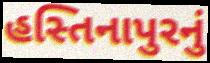
હસ્તિનાપુરનું